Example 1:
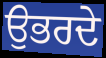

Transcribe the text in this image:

ਉਭਰਦੇ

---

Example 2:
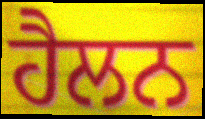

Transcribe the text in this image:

ਹੈਲਨ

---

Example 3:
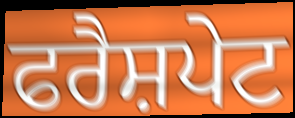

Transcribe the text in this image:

ਫਰੈਸ਼ਪੇਟ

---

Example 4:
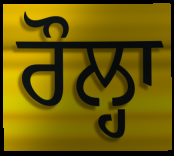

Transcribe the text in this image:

ਰੌਲ੍ਹਾ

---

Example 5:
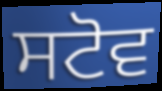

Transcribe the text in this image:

ਸਟੋਵ